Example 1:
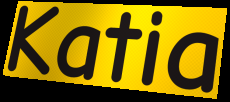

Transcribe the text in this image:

Katia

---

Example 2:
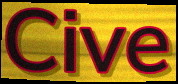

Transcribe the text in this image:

Cive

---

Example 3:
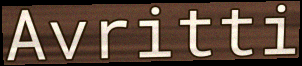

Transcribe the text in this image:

Avritti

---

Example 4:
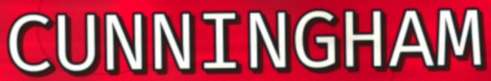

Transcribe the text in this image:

CUNNINGHAM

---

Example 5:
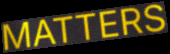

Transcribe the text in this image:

MATTERS